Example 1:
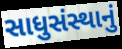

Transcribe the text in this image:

સાધુસંસ્થાનું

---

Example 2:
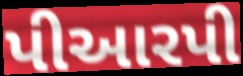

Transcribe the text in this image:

પીઆરપી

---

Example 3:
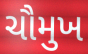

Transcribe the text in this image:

ચૌમુખ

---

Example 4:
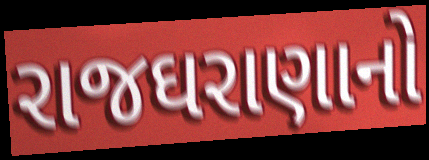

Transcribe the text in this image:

રાજઘરાણાનો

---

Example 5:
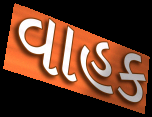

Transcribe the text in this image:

વાહક